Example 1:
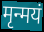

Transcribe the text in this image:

मृन्मयं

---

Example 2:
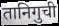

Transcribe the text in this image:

तानिगुची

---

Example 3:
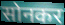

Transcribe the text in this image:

सोनकर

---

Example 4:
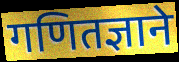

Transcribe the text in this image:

गणितज्ञाने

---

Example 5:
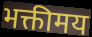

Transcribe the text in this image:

भक्तीमय